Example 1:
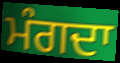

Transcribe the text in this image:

ਮੰਗਦਾ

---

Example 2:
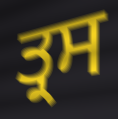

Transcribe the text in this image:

ਤ੍ਰਸ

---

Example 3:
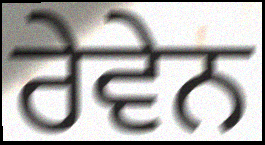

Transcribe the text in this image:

ਰੇਵੇਨ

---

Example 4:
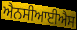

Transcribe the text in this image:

ਐਨਸੀਆਈਐਸ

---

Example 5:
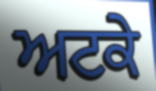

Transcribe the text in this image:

ਅਟਕੇ